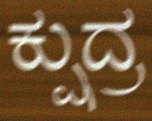
ಕ್ಷುದ್ರ